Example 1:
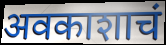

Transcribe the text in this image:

अवकाशाचं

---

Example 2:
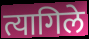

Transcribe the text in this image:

त्यागिले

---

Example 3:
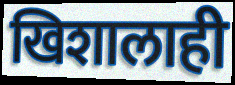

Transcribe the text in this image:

खिशालाही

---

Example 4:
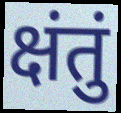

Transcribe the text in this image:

क्षंतुं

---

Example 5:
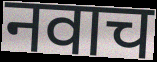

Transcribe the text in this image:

नवाच